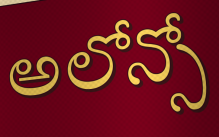
అలోన్సో